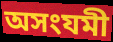
অসংযমী